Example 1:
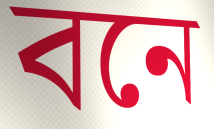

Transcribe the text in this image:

বনে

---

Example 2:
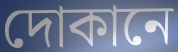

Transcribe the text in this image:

দোকানে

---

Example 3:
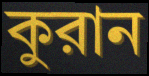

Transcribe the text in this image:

কুরান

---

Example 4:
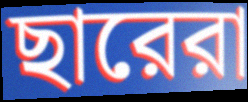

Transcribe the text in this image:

ছারেরা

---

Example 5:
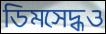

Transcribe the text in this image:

ডিমসেদ্ধও